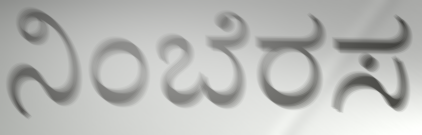
ನಿಂಬೆರಸ